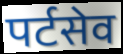
पर्टसेव